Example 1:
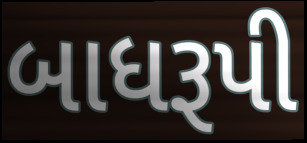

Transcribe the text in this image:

બાધરૂપી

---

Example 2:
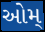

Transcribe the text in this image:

ઓમ્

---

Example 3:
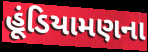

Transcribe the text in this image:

હૂંડિયામણના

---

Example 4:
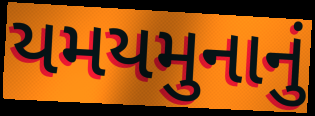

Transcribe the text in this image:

યમયમુનાનું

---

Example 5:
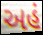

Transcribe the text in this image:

અહં